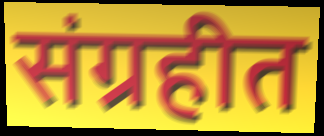
संग्रहीत